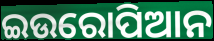
ଇଉରୋପିଆନ